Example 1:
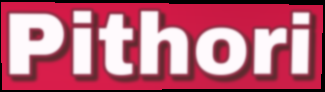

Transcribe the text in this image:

Pithori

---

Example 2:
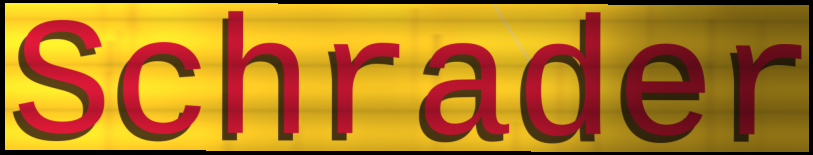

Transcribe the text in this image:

Schrader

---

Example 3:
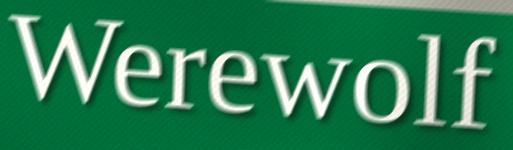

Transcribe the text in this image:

Werewolf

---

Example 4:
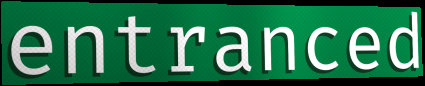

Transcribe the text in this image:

entranced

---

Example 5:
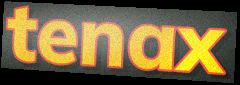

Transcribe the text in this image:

tenax